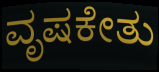
ವೃಷಕೇತು